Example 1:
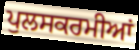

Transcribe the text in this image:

ਪੁਲਸਕਰਮੀਆਂ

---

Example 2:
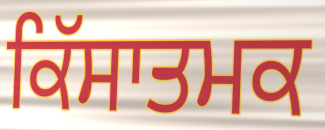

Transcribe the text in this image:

ਕਿੱਸਾਤਮਕ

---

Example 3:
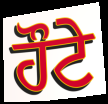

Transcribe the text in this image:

ਹੌਟੇ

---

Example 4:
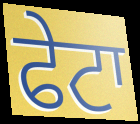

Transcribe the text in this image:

ਫੇਟਾ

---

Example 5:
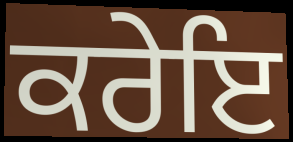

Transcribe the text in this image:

ਕਰੇਇ